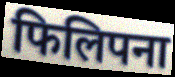
फिलिपना